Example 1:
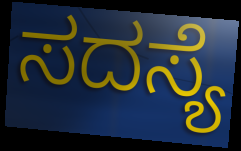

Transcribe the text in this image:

ಸದಸ್ಯೆ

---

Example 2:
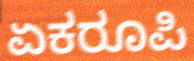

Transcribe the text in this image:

ಏಕರೂಪಿ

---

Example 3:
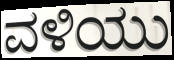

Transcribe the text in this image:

ವಳಿಯು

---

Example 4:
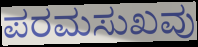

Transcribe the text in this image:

ಪರಮಸುಖವು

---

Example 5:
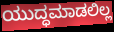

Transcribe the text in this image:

ಯುದ್ಧಮಾಡಲಿಲ್ಲ